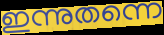
ഇന്നുതന്നെ